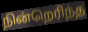
நின்றெரிந்த